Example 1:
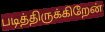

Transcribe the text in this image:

படித்திருக்கிறேன்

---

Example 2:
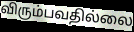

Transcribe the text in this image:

விரும்பவதில்லை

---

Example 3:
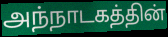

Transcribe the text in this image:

அந்நாடகத்தின்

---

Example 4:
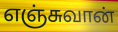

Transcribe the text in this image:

எஞ்சுவான்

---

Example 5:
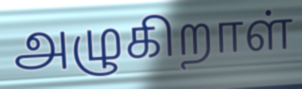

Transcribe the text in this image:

அழுகிறாள்